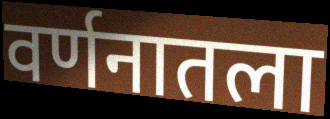
वर्णनातला